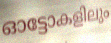
ഓട്ടോകളിലും